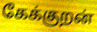
கேக்குறன்